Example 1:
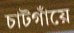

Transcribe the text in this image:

চাটগাঁয়ে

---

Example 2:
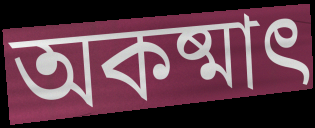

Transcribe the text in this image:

অকষ্মাৎ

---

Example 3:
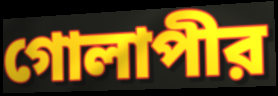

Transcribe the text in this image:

গোলাপীর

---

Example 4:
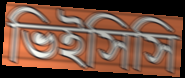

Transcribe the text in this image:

ভিইসিসি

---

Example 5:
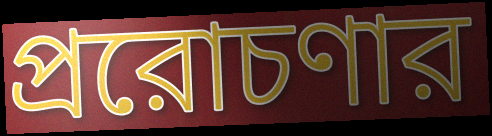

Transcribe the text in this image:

প্ররোচণার